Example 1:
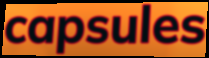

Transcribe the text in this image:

capsules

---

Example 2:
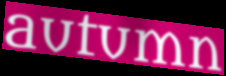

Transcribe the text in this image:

autumn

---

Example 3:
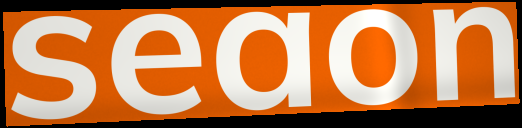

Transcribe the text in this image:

seaon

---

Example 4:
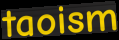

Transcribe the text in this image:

taoism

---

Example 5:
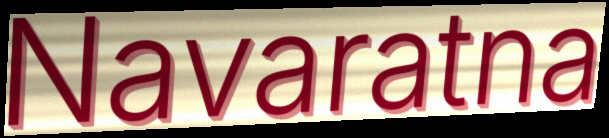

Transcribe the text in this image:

Navaratna